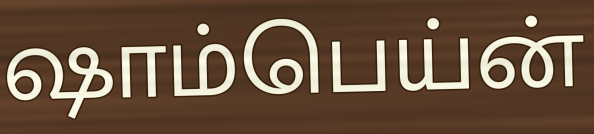
ஷாம்பெய்ன்